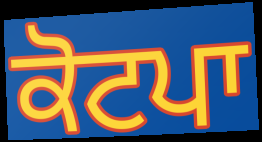
ਕੋਟਪਾ